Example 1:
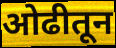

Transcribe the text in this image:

ओढीतून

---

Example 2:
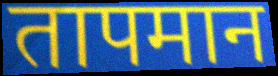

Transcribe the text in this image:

तापमान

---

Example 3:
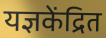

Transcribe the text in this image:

यज्ञकेंद्रित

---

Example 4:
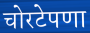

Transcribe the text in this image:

चोरटेपणा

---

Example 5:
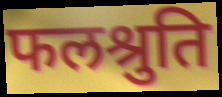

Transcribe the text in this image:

फलश्रुति